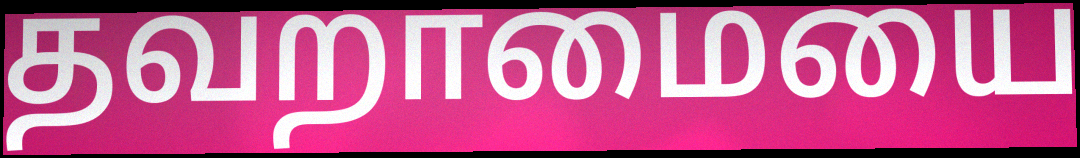
தவறாமையை